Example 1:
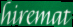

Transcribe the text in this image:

hiremat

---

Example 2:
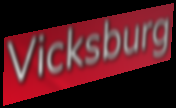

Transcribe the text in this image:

Vicksburg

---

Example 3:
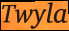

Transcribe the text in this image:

Twyla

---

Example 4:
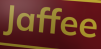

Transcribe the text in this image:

Jaffee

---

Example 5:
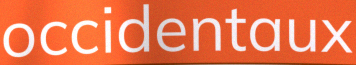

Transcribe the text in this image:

occidentaux